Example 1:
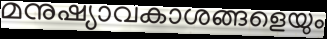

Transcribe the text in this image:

മനുഷ്യാവകാശങ്ങളെയും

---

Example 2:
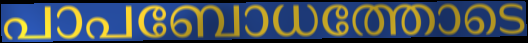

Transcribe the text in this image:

പാപബോധത്തോടെ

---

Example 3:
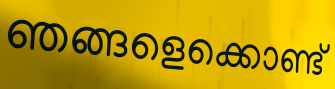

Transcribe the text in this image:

ഞങ്ങളെക്കൊണ്ട്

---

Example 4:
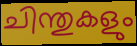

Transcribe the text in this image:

ചിന്തുകളും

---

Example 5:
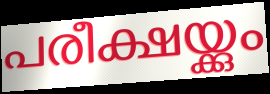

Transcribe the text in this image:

പരീക്ഷയ്ക്കും